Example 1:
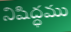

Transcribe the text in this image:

నిషిద్ధము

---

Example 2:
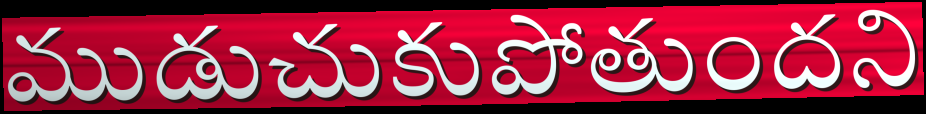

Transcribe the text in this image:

ముడుచుకుపోతుందని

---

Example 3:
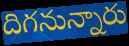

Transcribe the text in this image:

దిగనున్నారు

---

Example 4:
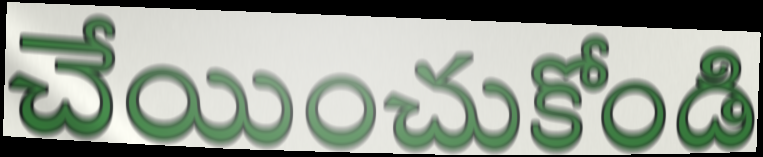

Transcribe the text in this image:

చేయించుకోండి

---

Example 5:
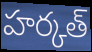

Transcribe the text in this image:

హర్కత్